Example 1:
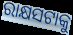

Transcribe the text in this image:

ରାକ୍ଷସଟାକୁ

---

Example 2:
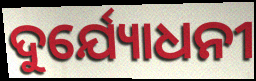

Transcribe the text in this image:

ଦୁର୍ଯ୍ୟୋଧନୀ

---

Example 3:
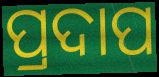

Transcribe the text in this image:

ପ୍ରଦାପ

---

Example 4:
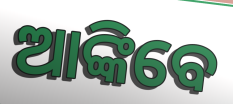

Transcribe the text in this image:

ଆଙ୍କିବେ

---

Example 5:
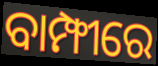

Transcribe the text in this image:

ବାମ୍ଫୀରେ